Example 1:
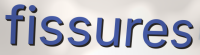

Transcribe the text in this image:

fissures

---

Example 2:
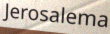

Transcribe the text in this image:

Jerosalema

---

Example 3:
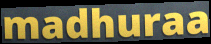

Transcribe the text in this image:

madhuraa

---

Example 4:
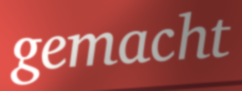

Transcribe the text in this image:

gemacht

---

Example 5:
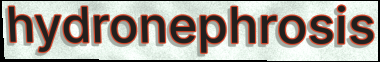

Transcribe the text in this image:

hydronephrosis